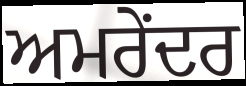
ਅਮਰੇਂਦਰ